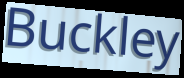
Buckley